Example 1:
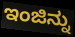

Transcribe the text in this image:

ಇಂಜಿನ್ನು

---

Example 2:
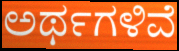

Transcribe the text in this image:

ಅರ್ಥಗಳಿವೆ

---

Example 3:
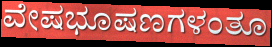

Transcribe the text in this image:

ವೇಷಭೂಷಣಗಳಂತೂ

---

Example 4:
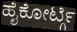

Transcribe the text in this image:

ಹೈಕೋರ್ಟ್ಗೆ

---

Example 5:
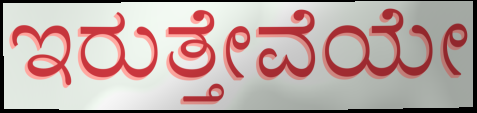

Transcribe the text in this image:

ಇರುತ್ತೇವೆಯೇ